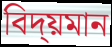
বিদ্য়মান